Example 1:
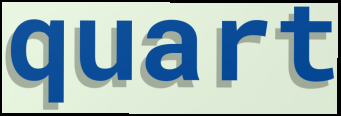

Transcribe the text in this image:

quart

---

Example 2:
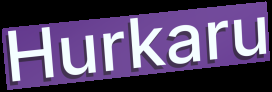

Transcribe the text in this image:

Hurkaru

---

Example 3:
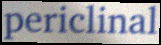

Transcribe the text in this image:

periclinal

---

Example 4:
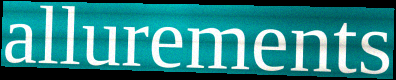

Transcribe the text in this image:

allurements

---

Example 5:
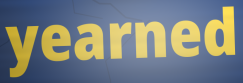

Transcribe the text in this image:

yearned